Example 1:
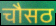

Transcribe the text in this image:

चौसठ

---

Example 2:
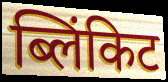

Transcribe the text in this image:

ब्लिंकिट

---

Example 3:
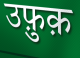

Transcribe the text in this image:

उफ़ुक़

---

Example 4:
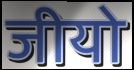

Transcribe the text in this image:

जीयो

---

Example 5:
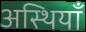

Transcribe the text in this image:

अस्थियाँ